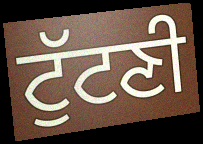
ਟੁੱਟਣੀ